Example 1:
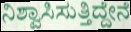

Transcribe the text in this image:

ನಿಶ್ವಾಸಿಸುತ್ತಿದ್ದೇನೆ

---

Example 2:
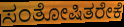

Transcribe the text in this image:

ಸಂತೋಷಿತರೇಕೆ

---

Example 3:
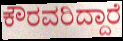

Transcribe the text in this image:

ಕೌರವರಿದ್ದಾರೆ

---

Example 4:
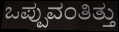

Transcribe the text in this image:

ಒಪ್ಪುವಂತಿತ್ತು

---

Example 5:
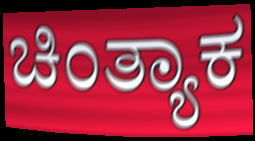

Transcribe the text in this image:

ಚಿಂತ್ಯಾಕ